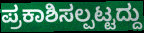
ಪ್ರಕಾಶಿಸಲ್ಪಟ್ಟದ್ದು